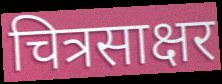
चित्रसाक्षर